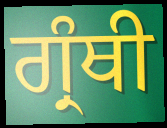
ਗ੍ਰੰਥੀ